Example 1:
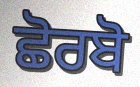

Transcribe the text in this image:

ਛੋਰਬੋ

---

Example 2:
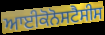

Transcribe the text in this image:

ਆਈਕੋਨੋਸਟੈਸੀਸ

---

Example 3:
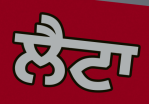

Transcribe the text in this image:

ਲੈਟਾ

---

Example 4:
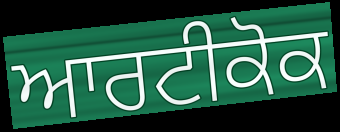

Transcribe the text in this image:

ਆਰਟੀਕੋਕ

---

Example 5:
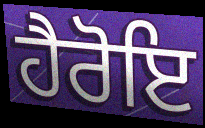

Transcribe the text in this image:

ਹੈਰੋਇ